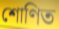
শোণিত